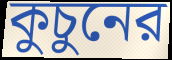
কুচুনের